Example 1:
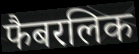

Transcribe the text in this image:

फैबरलिक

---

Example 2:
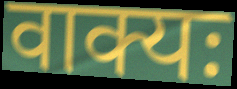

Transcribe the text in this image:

वाक्यः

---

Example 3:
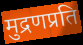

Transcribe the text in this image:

मुद्रणप्रति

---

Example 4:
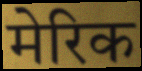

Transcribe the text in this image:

मेरिक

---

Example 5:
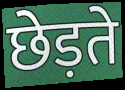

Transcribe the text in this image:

छेड़ते